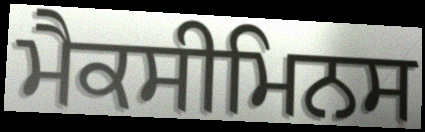
ਮੈਕਸੀਮਿਨਸ